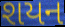
શયન